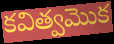
కవిత్వమొక